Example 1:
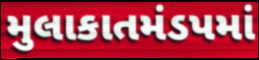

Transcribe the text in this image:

મુલાકાતમંડપમાં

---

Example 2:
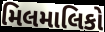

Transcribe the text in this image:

મિલમાલિકો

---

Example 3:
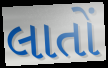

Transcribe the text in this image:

લાતોં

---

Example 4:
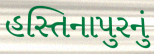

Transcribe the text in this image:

હસ્તિનાપુરનું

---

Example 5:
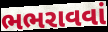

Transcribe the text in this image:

ભભરાવવાં